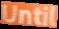
Until